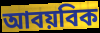
আবয়বিক